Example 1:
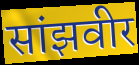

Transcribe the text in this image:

सांझवीर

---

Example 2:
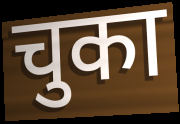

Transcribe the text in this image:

चुका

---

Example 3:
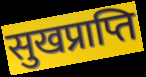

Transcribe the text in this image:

सुखप्राप्ति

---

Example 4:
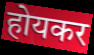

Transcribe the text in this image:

होयकर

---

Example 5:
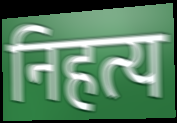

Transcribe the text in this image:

निहत्य